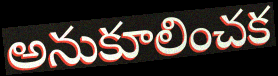
అనుకూలించక